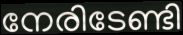
നേരിടേണ്ടി